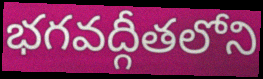
భగవద్గీతలోని